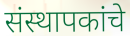
संस्थापकांचे